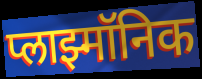
प्लाझ्मॉनिक